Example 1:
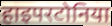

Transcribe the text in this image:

हाइपरटोनिया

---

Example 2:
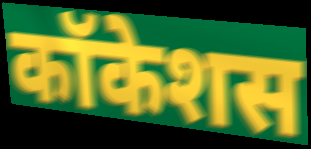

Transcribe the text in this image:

कॉकेशस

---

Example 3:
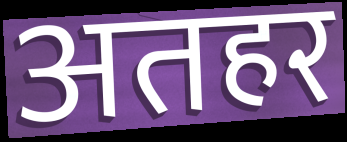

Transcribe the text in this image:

अतहर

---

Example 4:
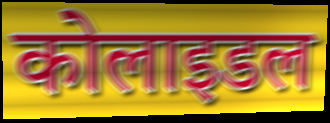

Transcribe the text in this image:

कोलाइडल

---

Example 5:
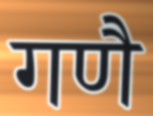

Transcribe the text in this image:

गणै